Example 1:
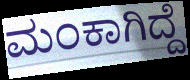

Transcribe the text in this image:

ಮಂಕಾಗಿದ್ದೆ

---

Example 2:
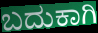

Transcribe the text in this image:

ಬದುಕಾಗಿ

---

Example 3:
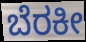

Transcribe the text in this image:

ಬೆರಕೀ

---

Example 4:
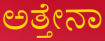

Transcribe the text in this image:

ಅತ್ತೇನಾ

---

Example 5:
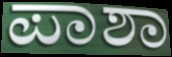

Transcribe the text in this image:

ಪಾಶಾ